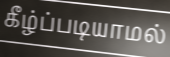
கீழ்ப்படியாமல்